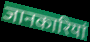
जानकारियां